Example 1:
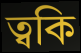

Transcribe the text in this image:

ত্বকি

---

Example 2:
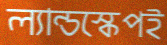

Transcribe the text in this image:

ল্যান্ডস্কেপই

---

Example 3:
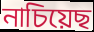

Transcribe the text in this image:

নাচিয়েছ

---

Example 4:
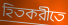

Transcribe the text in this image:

হিতকরীতে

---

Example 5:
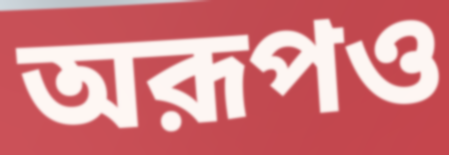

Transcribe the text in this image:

অরূপও